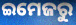
ଇମେଜରୁ